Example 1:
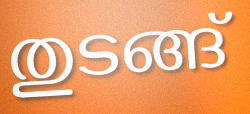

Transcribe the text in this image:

തുടങ്ങ്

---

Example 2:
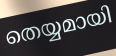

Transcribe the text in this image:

തെയ്യമായി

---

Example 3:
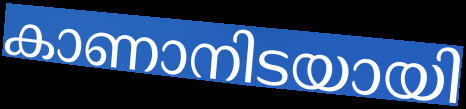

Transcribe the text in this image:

കാണാനിടയായി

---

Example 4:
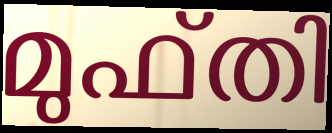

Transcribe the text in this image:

മുഫ്തി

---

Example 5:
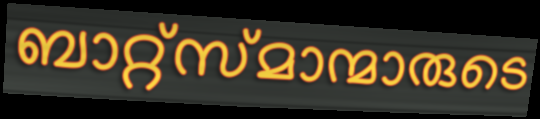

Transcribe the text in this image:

ബാറ്റ്സ്മാന്മാരുടെ